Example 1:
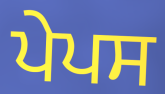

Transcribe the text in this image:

ਪੇਪਸ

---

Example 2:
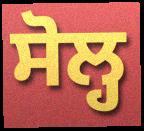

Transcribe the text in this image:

ਸੋਲ੍ਹ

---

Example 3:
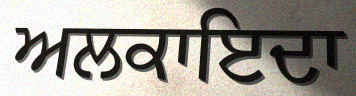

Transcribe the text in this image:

ਅਲਕਾਇਦਾ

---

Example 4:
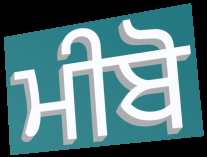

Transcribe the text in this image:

ਮੀਬੋ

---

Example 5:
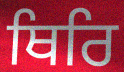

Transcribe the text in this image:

ਥਿਰਿ